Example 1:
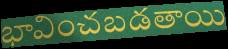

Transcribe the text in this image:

భావించబడతాయి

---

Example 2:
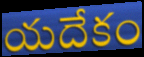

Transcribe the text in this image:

యదేకం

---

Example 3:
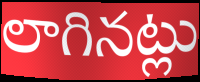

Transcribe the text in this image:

లాగినట్లు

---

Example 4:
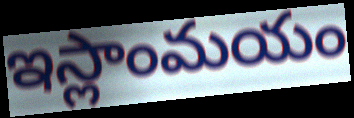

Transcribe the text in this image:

ఇస్లాంమయం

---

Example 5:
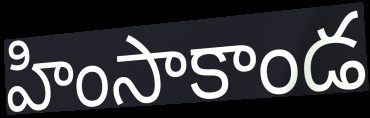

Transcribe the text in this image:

హింసాకాండ